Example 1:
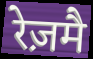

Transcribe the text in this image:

रेज़मै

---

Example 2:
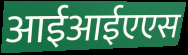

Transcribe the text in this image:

आईआईएएस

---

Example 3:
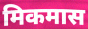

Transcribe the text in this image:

मिकमास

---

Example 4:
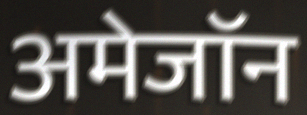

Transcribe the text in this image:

अमेजॉन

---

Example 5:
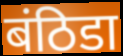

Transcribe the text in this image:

बंठिडा